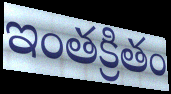
ఇంతక్రితం